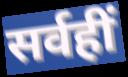
सर्वहीं